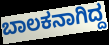
ಬಾಲಕನಾಗಿದ್ದ